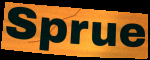
Sprue